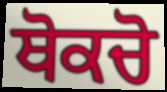
ਥੋਕਚੋ